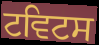
ਟਵਿਟਸ